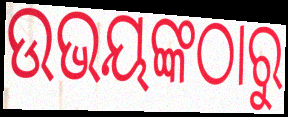
ଉଭୟଙ୍କଠାରୁ